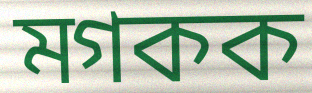
মগকক